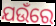
ଯଉଁରେ